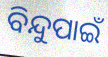
ବିନ୍ଦୁପାଇଁ